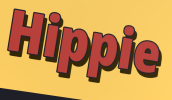
Hippie